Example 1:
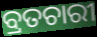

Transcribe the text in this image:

ବ୍ରତଚାରୀ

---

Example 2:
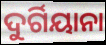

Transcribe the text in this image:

ଦୁର୍ଗିୟାନା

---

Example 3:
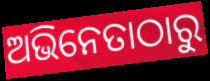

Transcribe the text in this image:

ଅଭିନେତାଠାରୁ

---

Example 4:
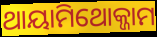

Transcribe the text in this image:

ଥାୟାମିଥୋକ୍ଜାମ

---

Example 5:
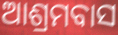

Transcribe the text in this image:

ଆଶ୍ରମବାସ